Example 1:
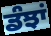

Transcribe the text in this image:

ਡੰਝਾਂ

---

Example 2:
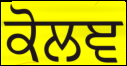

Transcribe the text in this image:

ਕੋਲਞ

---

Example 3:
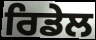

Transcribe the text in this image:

ਰਿਡੇਲ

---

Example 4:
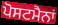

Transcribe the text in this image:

ਪੋਸਟਮੈਨਾਂ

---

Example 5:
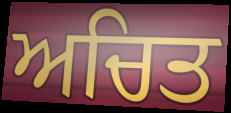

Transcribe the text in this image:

ਅਚਿਤ